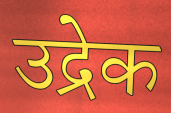
उद्रेक